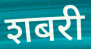
शबरी